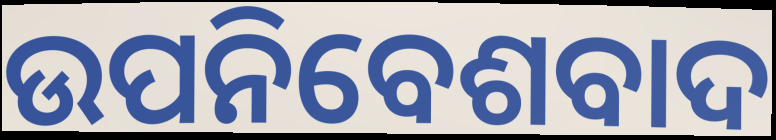
ଉପନିବେଶବାଦ